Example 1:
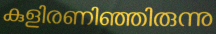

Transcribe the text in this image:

കുളിരണിഞ്ഞിരുന്നു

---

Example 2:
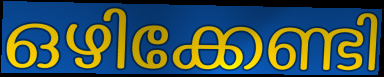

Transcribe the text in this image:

ഒഴിക്കേണ്ടി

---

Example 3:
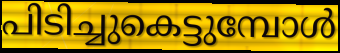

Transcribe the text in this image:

പിടിച്ചുകെട്ടുമ്പോൾ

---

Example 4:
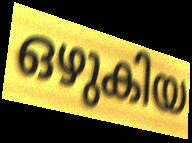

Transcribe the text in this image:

ഒഴുകിയ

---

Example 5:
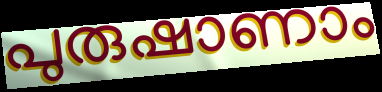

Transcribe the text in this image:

പുരുഷാണാം